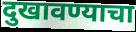
दुखावण्याचा